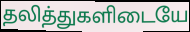
தலித்துகளிடையே